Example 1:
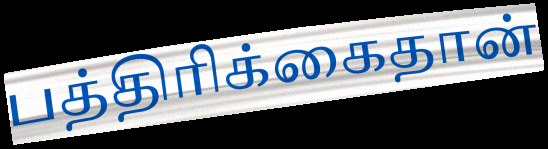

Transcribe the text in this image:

பத்திரிக்கைதான்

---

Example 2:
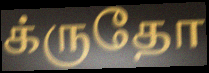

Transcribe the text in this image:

க்ருதோ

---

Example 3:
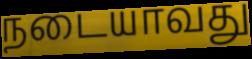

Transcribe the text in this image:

நடையாவது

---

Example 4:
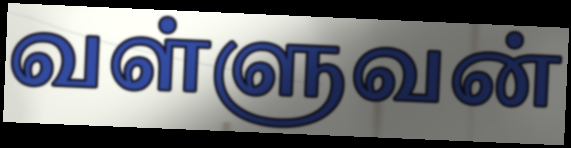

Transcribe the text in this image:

வள்ளுவன்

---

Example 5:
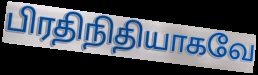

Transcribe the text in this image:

பிரதிநிதியாகவே